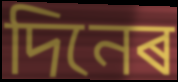
দিনেৰ